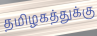
தமிழகத்துக்கு